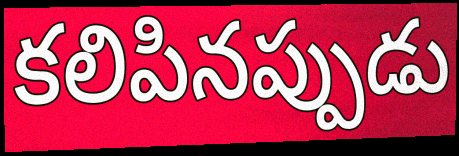
కలిపినప్పుడు